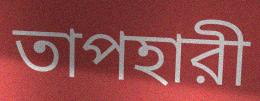
তাপহারী